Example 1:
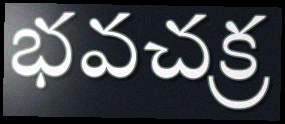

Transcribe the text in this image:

భవచక్ర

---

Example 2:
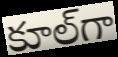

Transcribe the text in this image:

కూల్‌గా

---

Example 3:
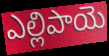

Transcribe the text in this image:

ఎల్లిపాయె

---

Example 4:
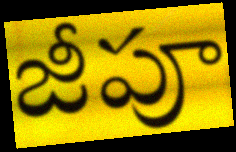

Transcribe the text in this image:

జీపూ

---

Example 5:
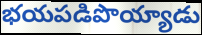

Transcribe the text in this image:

భయపడిపొయ్యాడు